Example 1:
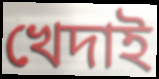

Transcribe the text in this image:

খেদাই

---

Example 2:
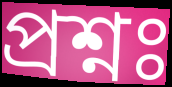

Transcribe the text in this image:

প্রশ্নঃ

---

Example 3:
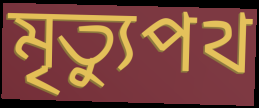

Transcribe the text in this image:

মৃত্যুপথ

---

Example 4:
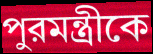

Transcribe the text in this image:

পুরমন্ত্রীকে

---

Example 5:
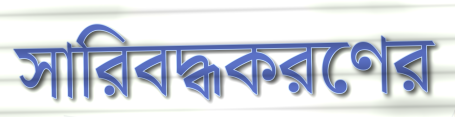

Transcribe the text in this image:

সারিবদ্ধকরণের